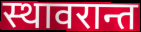
स्थावरान्त